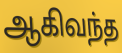
ஆகிவந்த